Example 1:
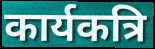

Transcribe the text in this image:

कार्यकत्रि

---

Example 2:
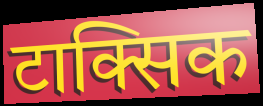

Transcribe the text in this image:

टाक्सिक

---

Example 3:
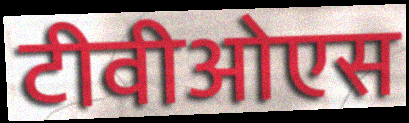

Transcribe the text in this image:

टीवीओएस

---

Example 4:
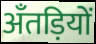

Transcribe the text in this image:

अँतड़ियों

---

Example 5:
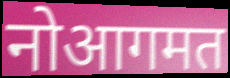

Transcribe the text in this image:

नोआगमत